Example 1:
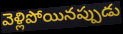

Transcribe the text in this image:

వెళ్లిపోయినప్పుడు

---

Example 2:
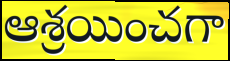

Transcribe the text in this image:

ఆశ్రయించగా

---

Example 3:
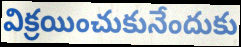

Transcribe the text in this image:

విక్రయించుకునేందుకు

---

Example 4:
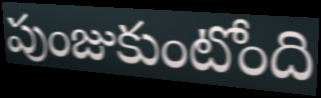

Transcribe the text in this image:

పుంజుకుంటోంది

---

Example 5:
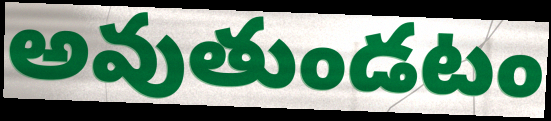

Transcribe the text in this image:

అవుతుండటం